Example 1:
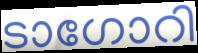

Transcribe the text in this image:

ടാഗോറി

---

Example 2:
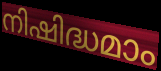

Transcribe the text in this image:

നിഷിദ്ധമാം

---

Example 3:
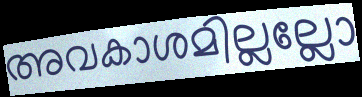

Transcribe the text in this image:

അവകാശമില്ലല്ലോ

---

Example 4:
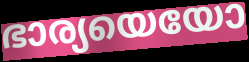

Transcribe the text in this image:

ഭാര്യയെയോ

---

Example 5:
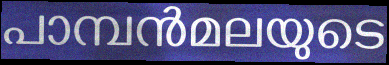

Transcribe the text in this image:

പാമ്പൻമലയുടെ